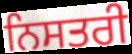
ਨਿਸਤਰੀ